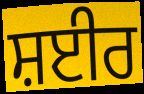
ਸ਼ਈਰ